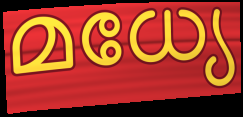
മധ്യേ